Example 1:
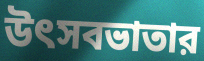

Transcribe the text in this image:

উৎসবভাতার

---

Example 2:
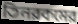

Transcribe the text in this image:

তিনরকমের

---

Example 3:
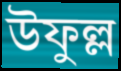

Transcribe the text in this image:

উফুল্ল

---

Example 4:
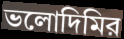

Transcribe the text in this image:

ভলোদিমির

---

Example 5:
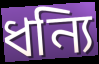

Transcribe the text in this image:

ধন্যি